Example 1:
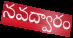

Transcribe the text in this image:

నవద్వారం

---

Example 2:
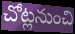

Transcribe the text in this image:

చోట్లనుంచి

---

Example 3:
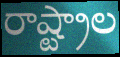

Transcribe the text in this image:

రాష్ట్రాల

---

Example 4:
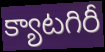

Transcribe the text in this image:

క్యాటగిరీ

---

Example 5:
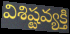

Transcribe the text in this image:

విశిష్టవ్యక్తి